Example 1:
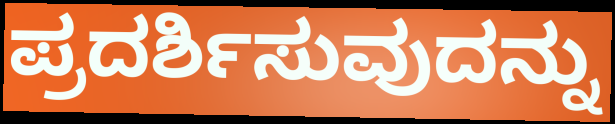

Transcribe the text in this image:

ಪ್ರದರ್ಶಿಸುವುದನ್ನು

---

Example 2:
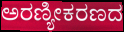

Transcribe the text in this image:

ಅರಣ್ಯೀಕರಣದ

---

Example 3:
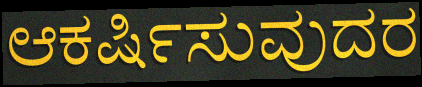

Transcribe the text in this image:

ಆಕರ್ಷಿಸುವುದರ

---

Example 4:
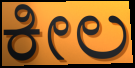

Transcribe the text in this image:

ಕೀಲ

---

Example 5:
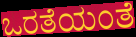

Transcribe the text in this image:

ಒರತೆಯಂತೆ